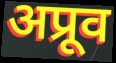
अप्रूव